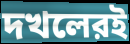
দখলেরই